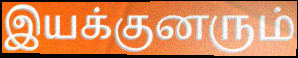
இயக்குனரும்